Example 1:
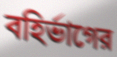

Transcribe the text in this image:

বহির্ভাগের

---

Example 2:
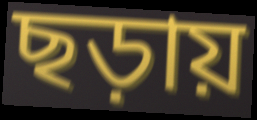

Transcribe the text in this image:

ছড়ায়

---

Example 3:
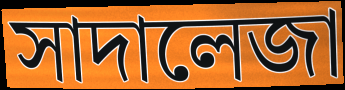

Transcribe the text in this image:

সাদালেজা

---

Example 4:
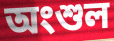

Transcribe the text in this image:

অংশুল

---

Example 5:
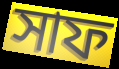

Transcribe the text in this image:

সাফ